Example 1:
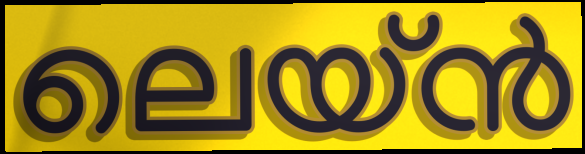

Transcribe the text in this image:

ലെയ്ൻ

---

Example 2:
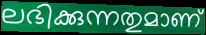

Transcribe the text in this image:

ലഭിക്കുന്നതുമാണ്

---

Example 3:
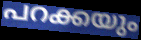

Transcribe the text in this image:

പറക്കയും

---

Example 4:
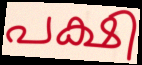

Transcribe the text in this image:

പക്ഷി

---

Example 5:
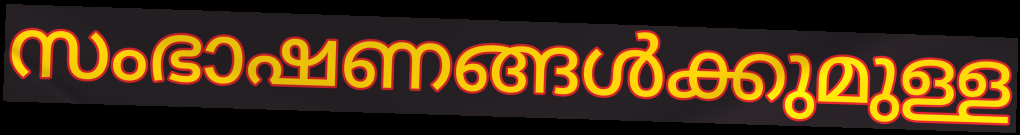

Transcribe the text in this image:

സംഭാഷണങ്ങൾക്കുമുള്ള